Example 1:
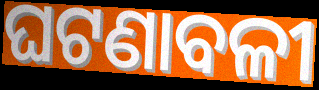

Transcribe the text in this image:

ଘଟଣାବଳୀ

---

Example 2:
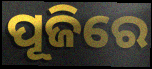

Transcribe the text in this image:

ପୂଜିରେ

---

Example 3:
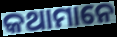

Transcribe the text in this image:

କଥାମାନେ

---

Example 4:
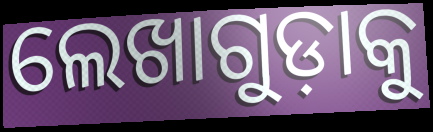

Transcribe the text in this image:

ଲେଖାଗୁଡ଼ାକୁ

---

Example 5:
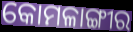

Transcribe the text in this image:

କୋମଳାଙ୍ଗୀର